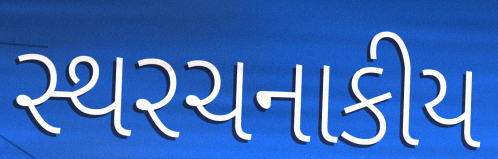
સ્થરચનાકીય